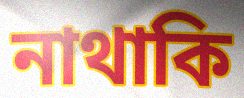
নাথাকি